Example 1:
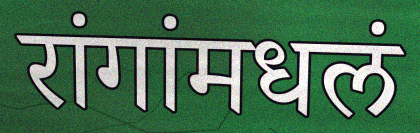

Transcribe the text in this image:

रांगांमधलं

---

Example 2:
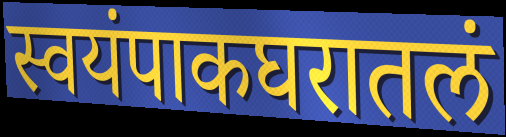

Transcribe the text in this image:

स्वयंपाकघरातलं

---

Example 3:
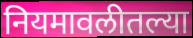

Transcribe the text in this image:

नियमावलीतल्या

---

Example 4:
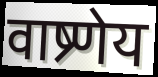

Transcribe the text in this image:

वाष्र्णेय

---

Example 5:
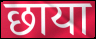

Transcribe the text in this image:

छाया